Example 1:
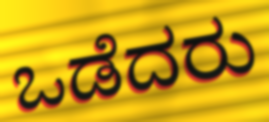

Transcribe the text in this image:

ಒಡೆದರು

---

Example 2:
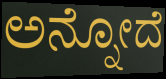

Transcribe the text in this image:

ಅನ್ನೋದೆ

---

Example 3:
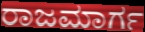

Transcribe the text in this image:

ರಾಜಮಾರ್ಗ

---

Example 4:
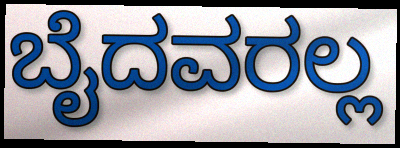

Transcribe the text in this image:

ಬೈದವರಲ್ಲ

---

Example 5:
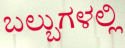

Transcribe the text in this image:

ಬಲ್ಬುಗಳಲ್ಲಿ